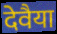
देवैया